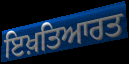
ਇਖ਼ਤਿਆਰਤ